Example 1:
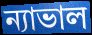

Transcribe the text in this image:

ন্যাভাল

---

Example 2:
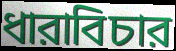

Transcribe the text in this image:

ধারাবিচার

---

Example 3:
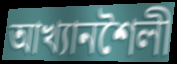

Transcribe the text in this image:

আখ্যানশৈলী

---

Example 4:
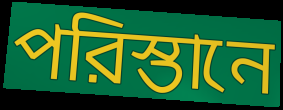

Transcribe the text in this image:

পরিস্তানে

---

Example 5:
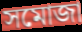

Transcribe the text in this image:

সমোজা